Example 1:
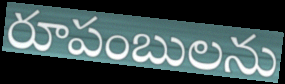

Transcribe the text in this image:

రూపంబులను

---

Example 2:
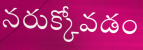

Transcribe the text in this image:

నరుక్కోవడం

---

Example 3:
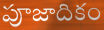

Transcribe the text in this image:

పూజాదికం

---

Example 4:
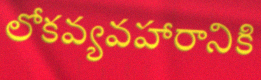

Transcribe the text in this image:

లోకవ్యవహారానికి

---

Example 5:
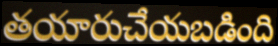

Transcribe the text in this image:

తయారుచేయబడింది